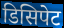
डिसिपेट